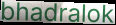
bhadralok